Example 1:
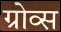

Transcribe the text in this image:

ग्रोव्स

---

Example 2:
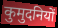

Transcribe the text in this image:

कुमुदनियों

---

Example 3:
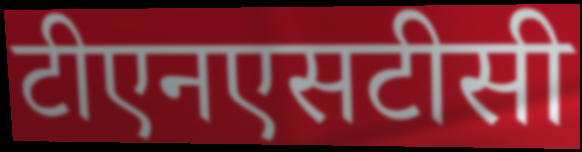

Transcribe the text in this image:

टीएनएसटीसी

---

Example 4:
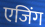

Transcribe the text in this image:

एजिंग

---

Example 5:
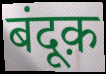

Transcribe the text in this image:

बंदूक़